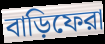
বাড়িফেরা